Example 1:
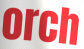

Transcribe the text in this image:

orch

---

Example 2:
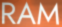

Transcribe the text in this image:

RAM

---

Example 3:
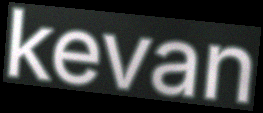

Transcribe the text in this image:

kevan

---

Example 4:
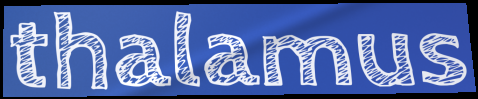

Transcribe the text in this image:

thalamus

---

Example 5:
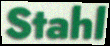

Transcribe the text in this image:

Stahl